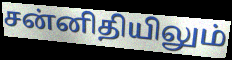
சன்னிதியிலும்